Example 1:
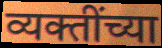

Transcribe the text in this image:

व्‍यक्‍तींच्‍या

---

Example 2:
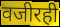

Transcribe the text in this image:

वजीरही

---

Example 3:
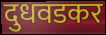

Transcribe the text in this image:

दुधवडकर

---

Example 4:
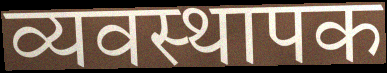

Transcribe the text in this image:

व्यवस्थापक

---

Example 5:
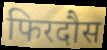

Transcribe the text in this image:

फिरदौस